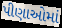
પીણાઓમાં